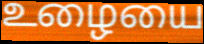
உழையை